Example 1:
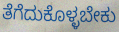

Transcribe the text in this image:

ತೆಗೆದುಕೊಳ್ಳಬೇಕು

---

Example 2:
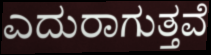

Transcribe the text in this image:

ಎದುರಾಗುತ್ತವೆ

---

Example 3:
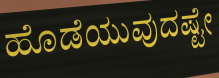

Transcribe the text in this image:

ಹೊಡೆಯುವುದಷ್ಟೇ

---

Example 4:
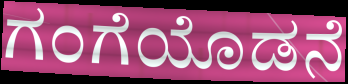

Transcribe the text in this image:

ಗಂಗೆಯೊಡನೆ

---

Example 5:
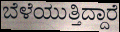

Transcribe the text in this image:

ಬೆಳೆಯುತ್ತಿದ್ದಾರೆ